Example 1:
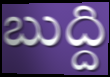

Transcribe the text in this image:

బుద్ది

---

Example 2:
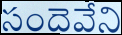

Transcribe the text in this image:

సందెవేని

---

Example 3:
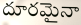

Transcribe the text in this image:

దూరమైనా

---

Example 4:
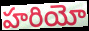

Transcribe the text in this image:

హరియో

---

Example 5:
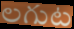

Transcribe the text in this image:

లగుట